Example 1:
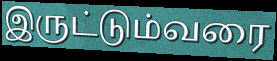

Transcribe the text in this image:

இருட்டும்வரை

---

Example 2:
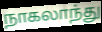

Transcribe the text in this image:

நாகலாந்து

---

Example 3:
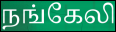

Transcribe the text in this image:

நங்கேலி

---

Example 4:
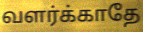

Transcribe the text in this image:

வளர்க்காதே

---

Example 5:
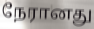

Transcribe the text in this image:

நேரானது